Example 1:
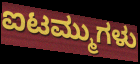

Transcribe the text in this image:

ಐಟಮ್ಮುಗಳು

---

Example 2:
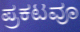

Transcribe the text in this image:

ಪ್ರಕಟವೂ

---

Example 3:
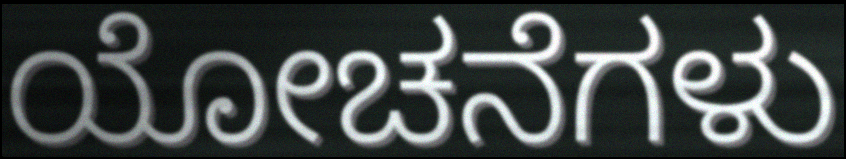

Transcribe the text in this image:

ಯೋಚನೆಗಳು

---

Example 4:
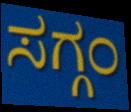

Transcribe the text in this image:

ಸಗ್ಗಂ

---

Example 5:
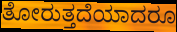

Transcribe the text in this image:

ತೋರುತ್ತದೆಯಾದರೂ